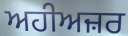
ਅਹੀਅਜ਼ਰ